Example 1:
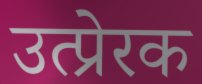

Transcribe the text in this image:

उत्प्रेरक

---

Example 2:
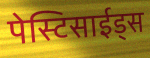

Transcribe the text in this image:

पेस्टिसाईड्स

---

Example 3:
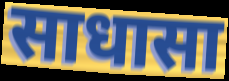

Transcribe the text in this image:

साधासा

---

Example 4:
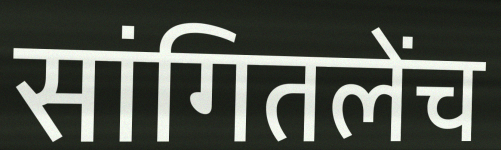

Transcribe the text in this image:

सांगितलेंच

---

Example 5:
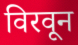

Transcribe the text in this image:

विरवून